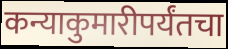
कन्याकुमारीपर्यंतचा